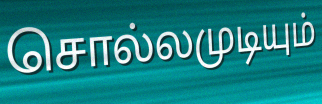
சொல்லமுடியும்